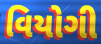
વિયોગી